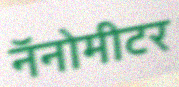
नॅनोमीटर